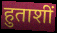
हुताशीं